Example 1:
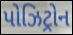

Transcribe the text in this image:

પોઝિટ્રોન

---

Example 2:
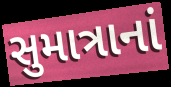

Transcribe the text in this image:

સુમાત્રાનાં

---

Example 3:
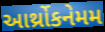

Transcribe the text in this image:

આર્થ્રોકનેમમ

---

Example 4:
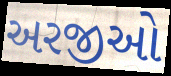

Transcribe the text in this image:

અરજીઓ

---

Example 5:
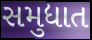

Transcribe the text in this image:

સમુદ્યાત